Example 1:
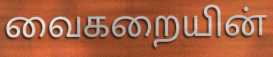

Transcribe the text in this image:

வைகறையின்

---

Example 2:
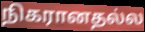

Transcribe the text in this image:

நிகரானதல்ல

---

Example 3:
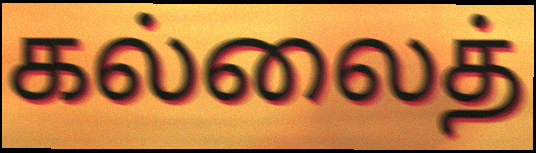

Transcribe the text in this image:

கல்லைத்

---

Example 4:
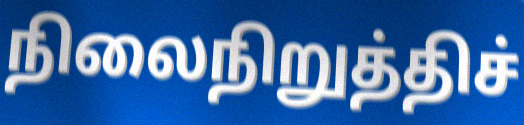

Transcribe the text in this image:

நிலைநிறுத்திச்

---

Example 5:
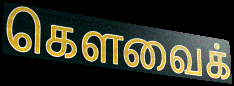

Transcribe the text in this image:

கௌவைக்